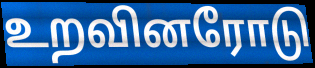
உறவினரோடு